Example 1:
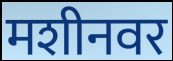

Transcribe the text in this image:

मशीनवर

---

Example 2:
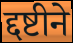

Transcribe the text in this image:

द्दष्टीने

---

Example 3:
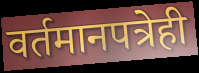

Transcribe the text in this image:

वर्तमानपत्रेही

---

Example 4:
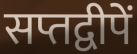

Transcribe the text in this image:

सप्तद्वीपें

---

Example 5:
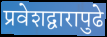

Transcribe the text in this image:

प्रवेशद्वारापुढे